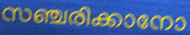
സഞ്ചരിക്കാനോ